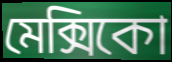
মেক্সিকো